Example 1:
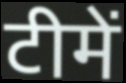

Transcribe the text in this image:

टीमें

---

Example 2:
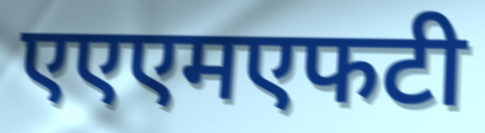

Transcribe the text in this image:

एएएमएफटी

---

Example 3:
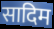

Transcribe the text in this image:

सादिम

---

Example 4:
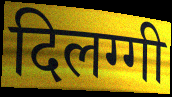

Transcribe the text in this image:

दिलग्गी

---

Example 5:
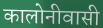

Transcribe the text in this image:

कालोनीवासी